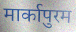
मार्कापुरम